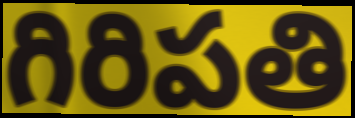
గిరిపతి